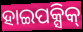
ହାଇପକ୍ସିକ୍